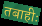
तबाहीः